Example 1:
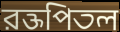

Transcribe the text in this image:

রক্তপিতল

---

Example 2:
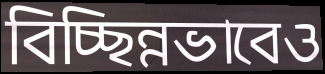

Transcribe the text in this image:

বিচ্ছিন্নভাবেও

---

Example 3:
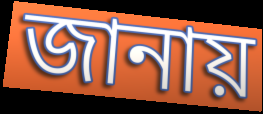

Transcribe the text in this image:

জানায়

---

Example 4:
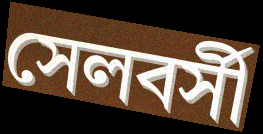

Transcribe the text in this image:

সেলবর্সী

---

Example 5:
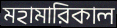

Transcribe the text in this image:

মহামারিকাল